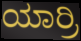
ಯಾರ್ರಿ